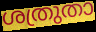
ശത്രുതാ